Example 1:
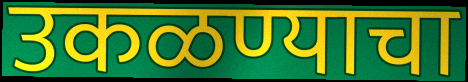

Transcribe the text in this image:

उकळण्याचा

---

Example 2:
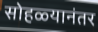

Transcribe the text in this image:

सोहळ्यानंतर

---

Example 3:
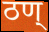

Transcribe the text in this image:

ठण्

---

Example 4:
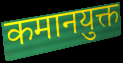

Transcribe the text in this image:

कमानयुक्त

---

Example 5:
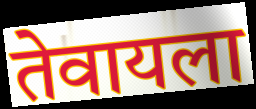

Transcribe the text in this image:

तेवायला